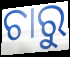
ଚାରୁ